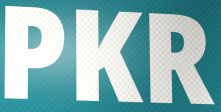
PKR